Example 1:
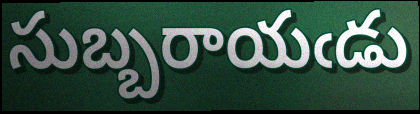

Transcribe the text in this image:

సుబ్బరాయఁడు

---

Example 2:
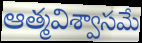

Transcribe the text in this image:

ఆత్మవిశ్వాసమే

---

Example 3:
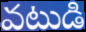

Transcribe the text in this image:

వటుడి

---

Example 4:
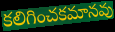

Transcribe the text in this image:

కలిగించకమానవు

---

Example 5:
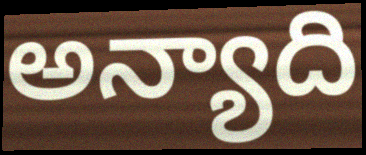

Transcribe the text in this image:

అన్యాది